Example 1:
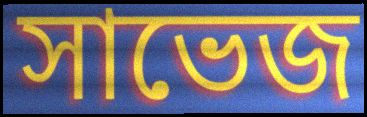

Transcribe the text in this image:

সাভেজ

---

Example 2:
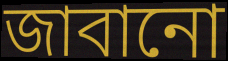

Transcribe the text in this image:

জাবানো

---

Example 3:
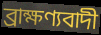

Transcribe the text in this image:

ব্রাক্ষণ্যবাদী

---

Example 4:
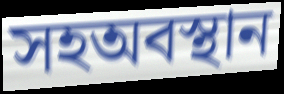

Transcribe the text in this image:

সহঅবস্থান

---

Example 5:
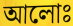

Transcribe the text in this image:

আলোঃ